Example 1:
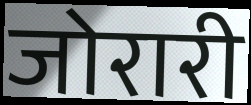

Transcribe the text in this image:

जोरारी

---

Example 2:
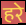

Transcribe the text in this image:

हरे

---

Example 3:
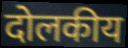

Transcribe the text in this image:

दोलकीय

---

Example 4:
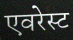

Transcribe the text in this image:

एवरेस्ट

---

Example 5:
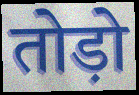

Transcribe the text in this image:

तोड़ो